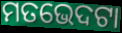
ମତଭେଦଟା